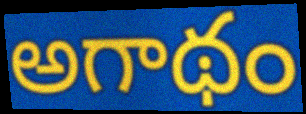
అగాథం